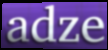
adze